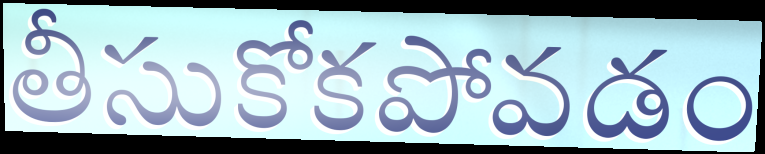
తీసుకోకపోవడం